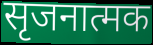
सृजनात्मक